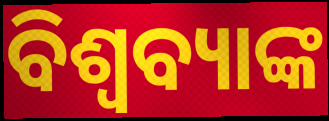
ବିଶ୍ୱବ୍ୟାଙ୍କ